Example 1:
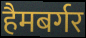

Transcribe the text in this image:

हैमबर्गर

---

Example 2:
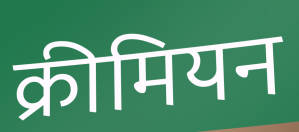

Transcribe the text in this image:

क्रीमियन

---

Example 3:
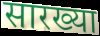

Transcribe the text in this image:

सारख्या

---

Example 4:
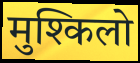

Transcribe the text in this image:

मुश्किलो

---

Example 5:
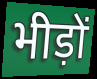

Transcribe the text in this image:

भीड़ों